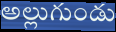
అల్లుగుండు